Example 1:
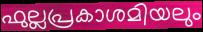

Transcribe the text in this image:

ഫുല്ലപ്രകാശമിയലും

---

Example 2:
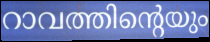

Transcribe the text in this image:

റാവത്തിന്റെയും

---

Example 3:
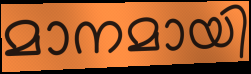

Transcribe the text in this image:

മാനമായി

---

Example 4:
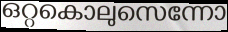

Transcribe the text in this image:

ഒറ്റകൊലുസെന്നോ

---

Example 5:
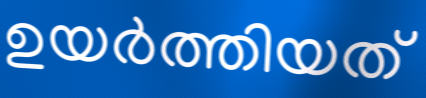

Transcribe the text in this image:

ഉയർത്തിയത്